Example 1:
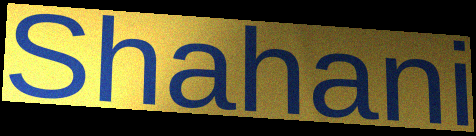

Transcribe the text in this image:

Shahani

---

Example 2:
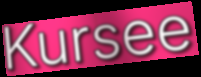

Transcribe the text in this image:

Kursee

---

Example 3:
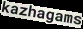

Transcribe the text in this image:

kazhagams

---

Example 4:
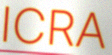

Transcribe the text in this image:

ICRA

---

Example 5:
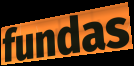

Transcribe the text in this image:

fundas